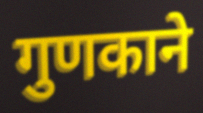
गुणकाने